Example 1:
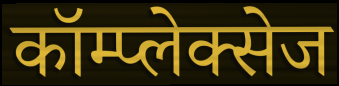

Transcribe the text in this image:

कॉम्प्लेक्सेज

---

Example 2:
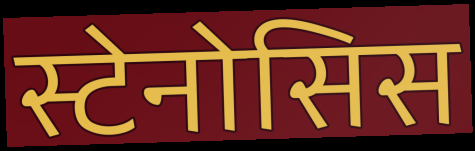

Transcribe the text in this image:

स्टेनोसिस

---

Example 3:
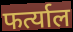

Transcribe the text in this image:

फर्त्याल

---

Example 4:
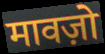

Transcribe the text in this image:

मावज़ो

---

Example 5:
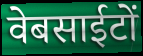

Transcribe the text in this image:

वेबसाईटों